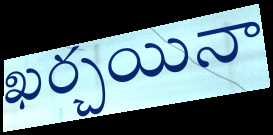
ఖర్చయినా